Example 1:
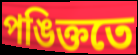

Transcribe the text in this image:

পঙিক্ততে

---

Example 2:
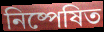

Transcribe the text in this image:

নিষ্পেষিত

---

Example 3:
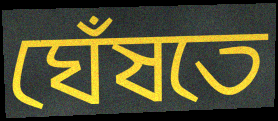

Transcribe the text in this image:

ঘেঁষতে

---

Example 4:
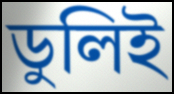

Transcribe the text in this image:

ডুলিই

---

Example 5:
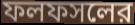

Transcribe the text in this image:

ফলফসলের